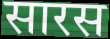
सारस